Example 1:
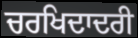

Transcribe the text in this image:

ਚਰਖਿਦਾਦਰੀ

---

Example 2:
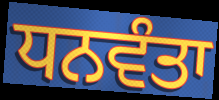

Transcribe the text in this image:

ਧਨਵੰਤਾ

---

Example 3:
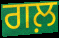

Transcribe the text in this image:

ਗਲ਼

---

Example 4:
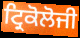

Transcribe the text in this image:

ਟ੍ਰਿਕੋਲੋਜੀ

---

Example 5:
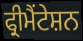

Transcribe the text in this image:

ਫ੍ਰੀਮੈਂਟੇਸ਼ਨ